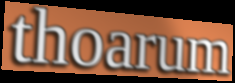
thoarum